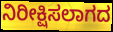
ನಿರೀಕ್ಷಿಸಲಾಗದ